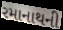
રમાનાથની